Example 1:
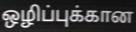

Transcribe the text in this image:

ஒழிப்புக்கான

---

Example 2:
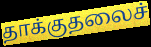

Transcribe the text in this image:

தாக்குதலைச்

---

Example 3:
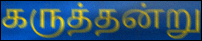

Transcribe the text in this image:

கருத்தன்று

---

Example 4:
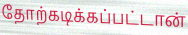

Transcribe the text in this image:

தோற்கடிக்கப்பட்டான்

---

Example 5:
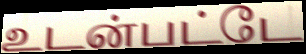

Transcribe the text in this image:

உடன்பட்டே